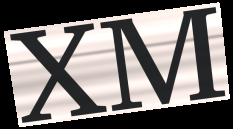
XM